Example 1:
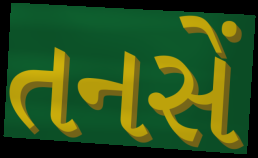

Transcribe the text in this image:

તનસેં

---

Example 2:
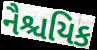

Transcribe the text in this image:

નૈશ્ચયિક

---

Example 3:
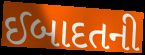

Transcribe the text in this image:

ઈબાદતની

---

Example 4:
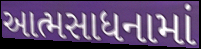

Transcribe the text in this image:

આત્મસાધનામાં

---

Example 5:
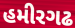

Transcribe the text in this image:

હમીરગઢ